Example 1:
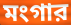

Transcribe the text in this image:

মংগার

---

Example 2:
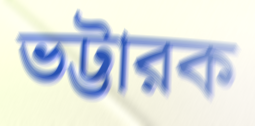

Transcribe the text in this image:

ভট্টারক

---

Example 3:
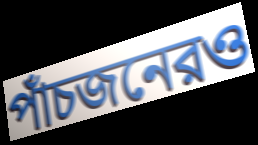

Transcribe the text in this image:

পাঁচজনেরও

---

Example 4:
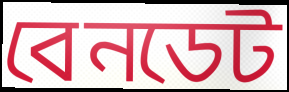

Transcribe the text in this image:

বেনডেট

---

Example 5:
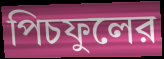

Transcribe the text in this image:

পিচফুলের